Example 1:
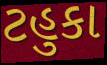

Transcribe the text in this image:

ટહુકા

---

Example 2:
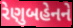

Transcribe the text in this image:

રેણુબહેનને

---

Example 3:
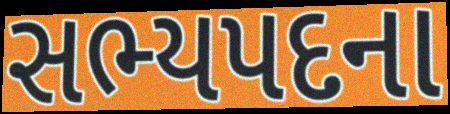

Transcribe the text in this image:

સભ્યપદના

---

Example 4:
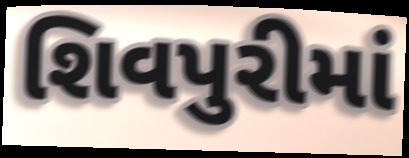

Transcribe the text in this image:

શિવપુરીમાં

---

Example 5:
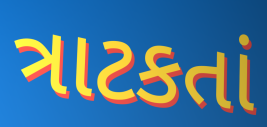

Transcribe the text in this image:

ત્રાટકતાં